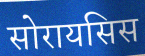
सोरायसिस